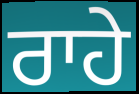
ਰਾਹੇ